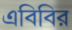
এবিবির